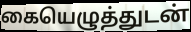
கையெழுத்துடன்